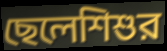
ছেলেশিশুর